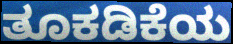
ತೂಕಡಿಕೆಯ